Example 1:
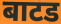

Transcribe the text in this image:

बाटड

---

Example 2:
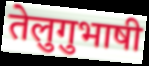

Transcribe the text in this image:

तेलुगुभाषी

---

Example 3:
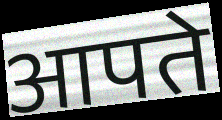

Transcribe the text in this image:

आपते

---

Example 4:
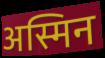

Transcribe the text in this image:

अस्मिन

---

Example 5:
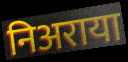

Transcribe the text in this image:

निअराया